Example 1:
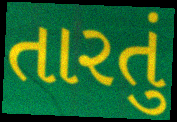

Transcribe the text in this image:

તારતું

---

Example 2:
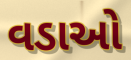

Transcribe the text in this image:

વડાઓ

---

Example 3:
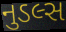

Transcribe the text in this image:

નુડલ્સ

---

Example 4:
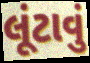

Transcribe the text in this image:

લૂંટાવું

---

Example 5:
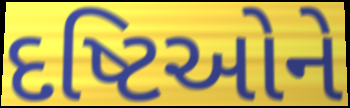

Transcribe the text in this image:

દષ્ટિઓને